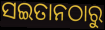
ସଇତାନଠାରୁ